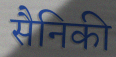
सैनिकी